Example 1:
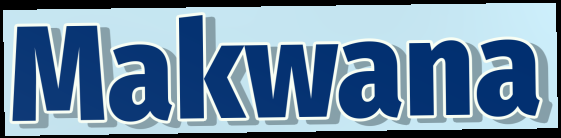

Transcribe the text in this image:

Makwana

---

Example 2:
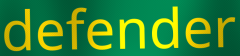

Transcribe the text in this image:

defender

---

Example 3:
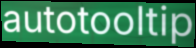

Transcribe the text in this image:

autotooltip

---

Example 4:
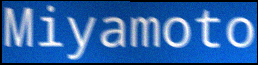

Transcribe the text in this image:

Miyamoto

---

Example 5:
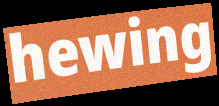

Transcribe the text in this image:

hewing